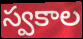
స్వకాల